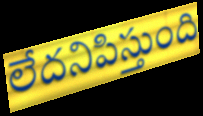
లేదనిపిస్తుంది